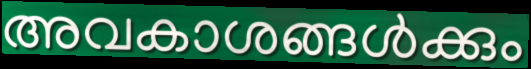
അവകാശങ്ങൾക്കും